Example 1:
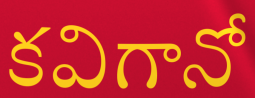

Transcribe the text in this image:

కవిగానో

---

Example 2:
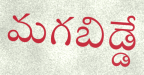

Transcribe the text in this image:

మగబిడ్డే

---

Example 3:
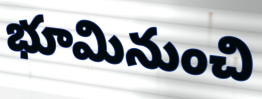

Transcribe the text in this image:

భూమినుంచి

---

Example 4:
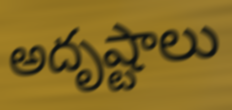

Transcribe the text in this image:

అదృష్టాలు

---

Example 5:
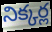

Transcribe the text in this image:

నిక్కర్ల